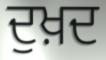
ਦੁਖ਼ਦ